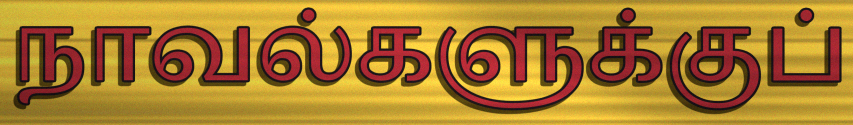
நாவல்களுக்குப்